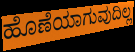
ಹೊಣೆಯಾಗುವುದಿಲ್ಲ